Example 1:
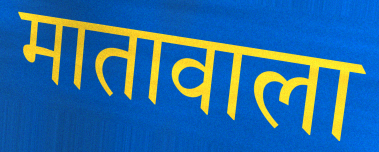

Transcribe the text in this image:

मातावाला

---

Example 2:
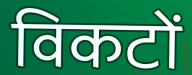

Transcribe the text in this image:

विकटों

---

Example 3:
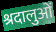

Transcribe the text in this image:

श्रदालुओं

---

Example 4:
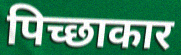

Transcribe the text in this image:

पिच्छाकार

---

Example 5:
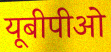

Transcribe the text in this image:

यूबीपीओ